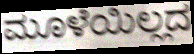
ಮೂಳೆಯಿಲ್ಲದ